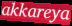
akkareya